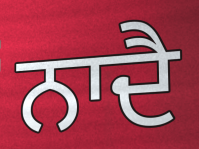
ਨਾਦੈ